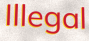
Illegal